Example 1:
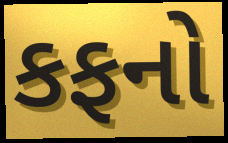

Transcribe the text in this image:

કફનો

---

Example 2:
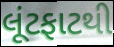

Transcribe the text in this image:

લૂંટફાટથી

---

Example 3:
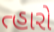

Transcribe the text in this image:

ત્હારો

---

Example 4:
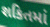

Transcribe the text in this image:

શકિતમાં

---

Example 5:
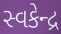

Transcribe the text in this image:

સ્વકેન્દ્ર